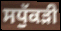
ਸਧੁੱਕੜੀ